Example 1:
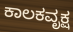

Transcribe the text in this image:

ಕಾಲಕವೃಕ್ಷ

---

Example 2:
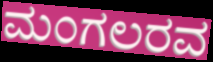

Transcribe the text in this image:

ಮಂಗಲರವ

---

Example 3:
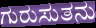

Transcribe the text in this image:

ಗುರುಸುತನು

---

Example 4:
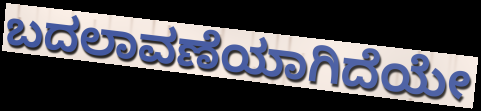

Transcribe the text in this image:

ಬದಲಾವಣೆಯಾಗಿದೆಯೇ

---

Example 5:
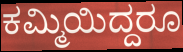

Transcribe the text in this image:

ಕಮ್ಮಿಯಿದ್ದರೂ